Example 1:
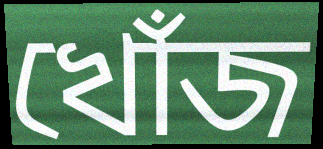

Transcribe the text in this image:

খোঁজ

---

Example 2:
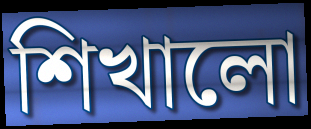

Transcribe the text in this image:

শিখালো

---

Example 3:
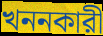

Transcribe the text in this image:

খননকারী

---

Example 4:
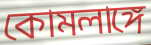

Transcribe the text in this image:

কোমলাঙ্গে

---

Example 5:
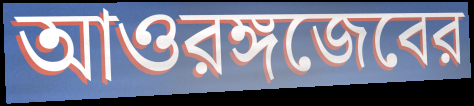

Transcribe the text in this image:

আওরঙ্গজেবের